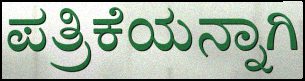
ಪತ್ರಿಕೆಯನ್ನಾಗಿ